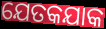
ଯେତକଯାକ